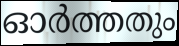
ഓർത്തതും